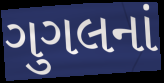
ગુગલનાં